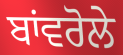
ਬਾਂਵਰੋਲੇ